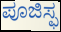
ಪೂಜಿಸ್ಫ